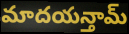
మాదయన్తామ్